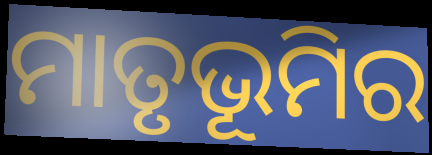
ମାତୃଭୂମିର